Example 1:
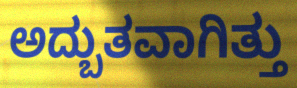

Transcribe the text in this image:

ಅದ್ಬುತವಾಗಿತ್ತು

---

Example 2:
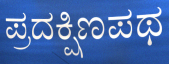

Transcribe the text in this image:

ಪ್ರದಕ್ಷಿಣಪಥ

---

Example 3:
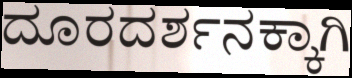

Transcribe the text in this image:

ದೂರದರ್ಶನಕ್ಕಾಗಿ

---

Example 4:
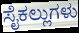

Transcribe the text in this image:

ಸೈಕಲ್ಲುಗಳು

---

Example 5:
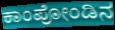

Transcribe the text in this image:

ಕಾಂಪೋಂಡಿನ